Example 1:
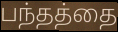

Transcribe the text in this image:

பந்தத்தை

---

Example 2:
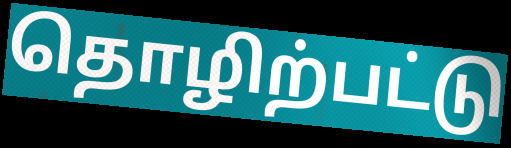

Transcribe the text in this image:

தொழிற்பட்டு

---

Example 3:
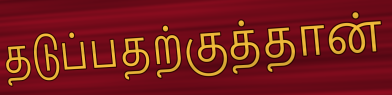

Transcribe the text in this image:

தடுப்பதற்குத்தான்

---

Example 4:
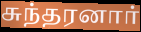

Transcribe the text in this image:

சுந்தரனார்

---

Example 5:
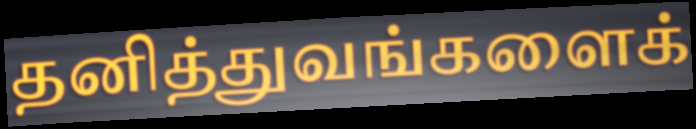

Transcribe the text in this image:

தனித்துவங்களைக்